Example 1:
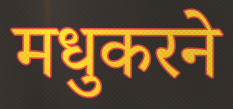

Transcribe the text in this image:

मधुकरने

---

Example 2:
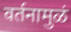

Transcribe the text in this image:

वर्तनामुळं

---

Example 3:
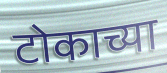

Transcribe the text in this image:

टोकाच्या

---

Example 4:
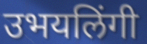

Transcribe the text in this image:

उभयलिंगी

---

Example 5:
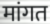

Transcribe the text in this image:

मांगत